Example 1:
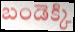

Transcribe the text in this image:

బండెక్కి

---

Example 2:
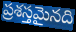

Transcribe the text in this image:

ప్రశస్తమైనది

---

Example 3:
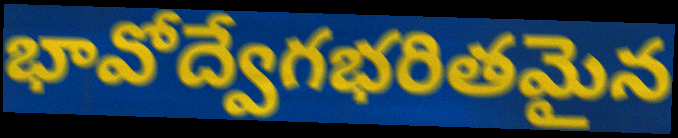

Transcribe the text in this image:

భావోద్వేగభరితమైన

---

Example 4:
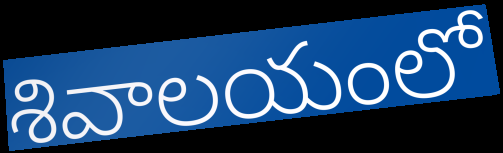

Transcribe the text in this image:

శివాలయంలో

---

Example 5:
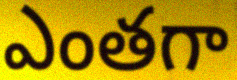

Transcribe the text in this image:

ఎంతగా